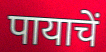
पायाचें